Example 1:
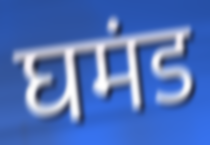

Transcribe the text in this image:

घमंड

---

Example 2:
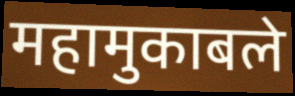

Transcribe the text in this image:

महामुकाबले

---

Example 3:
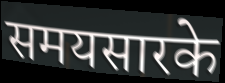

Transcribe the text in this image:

समयसारके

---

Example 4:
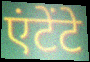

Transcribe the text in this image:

एंटेंटे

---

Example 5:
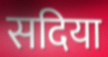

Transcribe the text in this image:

सदिया